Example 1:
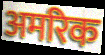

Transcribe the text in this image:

अमरिक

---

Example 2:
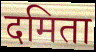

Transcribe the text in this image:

दमिता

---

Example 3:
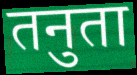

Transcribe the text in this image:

तनुता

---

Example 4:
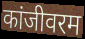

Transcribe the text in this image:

कांजीवरम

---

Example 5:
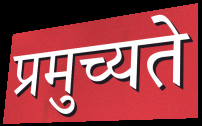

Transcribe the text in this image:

प्रमुच्यते